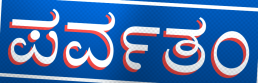
ಪರ್ವತಂ